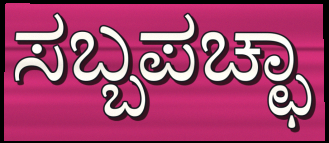
ಸಬ್ಬಪಚ್ಛಾ